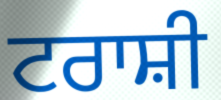
ਟਰਾਸ਼ੀ